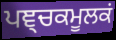
ਪਞ੍ਚਕਮੂਲਕਂ